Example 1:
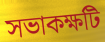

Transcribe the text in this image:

সভাকক্ষটি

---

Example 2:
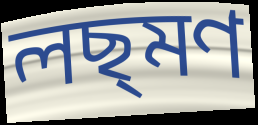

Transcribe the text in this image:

লছ্মণ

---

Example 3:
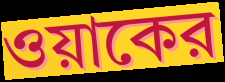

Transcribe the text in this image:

ওয়াকের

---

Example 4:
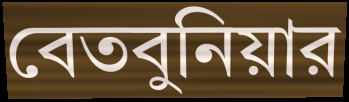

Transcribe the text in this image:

বেতবুনিয়ার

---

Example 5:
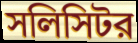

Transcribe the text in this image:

সলিসিটর